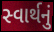
સ્વાર્થનું